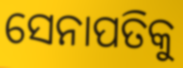
ସେନାପତିକୁ